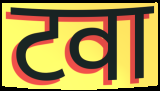
टवा